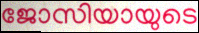
ജോസിയായുടെ